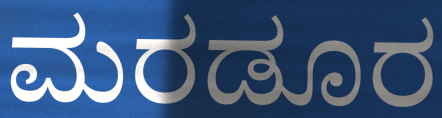
ಮರಡೂರ